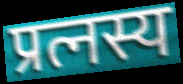
प्रत्नस्य